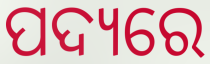
ପଦ୍ୟରେ